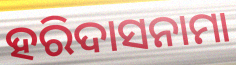
ହରିଦାସନାମା